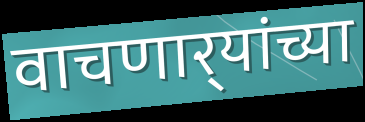
वाचणार्‍यांच्या